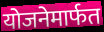
योजनेमार्फत